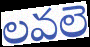
లవలె